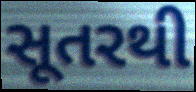
સૂતરથી